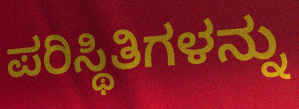
ಪರಿಸ್ಥಿತಿಗಳನ್ನು